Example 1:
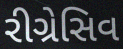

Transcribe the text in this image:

રીગ્રેસિવ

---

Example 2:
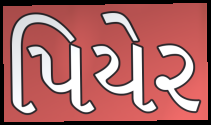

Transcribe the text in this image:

પિયેર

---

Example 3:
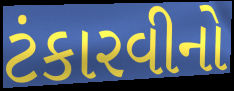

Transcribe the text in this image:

ટંકારવીનો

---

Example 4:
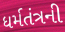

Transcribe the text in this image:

ધર્મતંત્રની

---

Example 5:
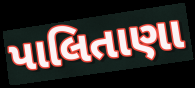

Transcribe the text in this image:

પાલિતાણા